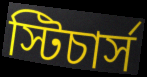
স্টিচার্স